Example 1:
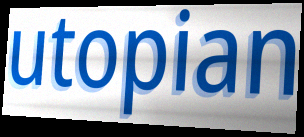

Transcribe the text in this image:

utopian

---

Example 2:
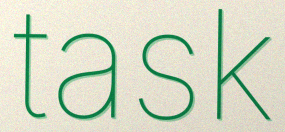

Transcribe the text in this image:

task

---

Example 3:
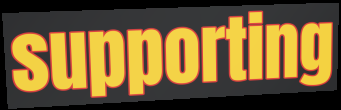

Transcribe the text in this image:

supporting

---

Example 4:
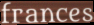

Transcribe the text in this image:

frances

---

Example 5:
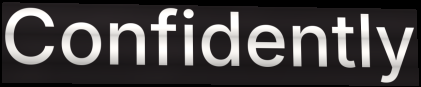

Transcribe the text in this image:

Confidently